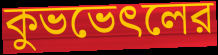
কুভভেৎলের